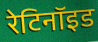
रेटिनॉइड